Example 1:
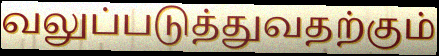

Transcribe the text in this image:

வலுப்படுத்துவதற்கும்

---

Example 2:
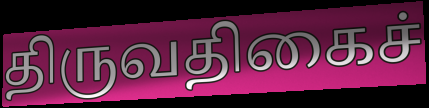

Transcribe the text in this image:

திருவதிகைச்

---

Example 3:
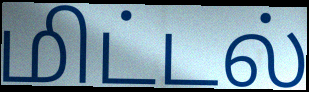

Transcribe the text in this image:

மிட்டல்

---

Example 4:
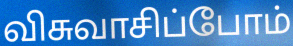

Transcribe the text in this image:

விசுவாசிப்போம்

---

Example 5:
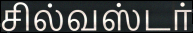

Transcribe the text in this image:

சில்வஸ்டர்